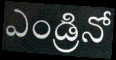
ఎండ్రినో